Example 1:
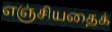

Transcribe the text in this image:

எஞ்சியதைக்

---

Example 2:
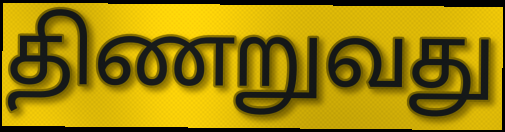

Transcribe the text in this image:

திணறுவது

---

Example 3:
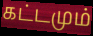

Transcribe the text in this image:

கட்டமும்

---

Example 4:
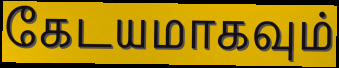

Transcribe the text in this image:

கேடயமாகவும்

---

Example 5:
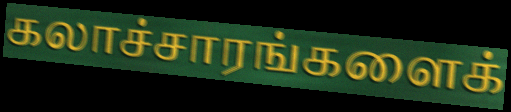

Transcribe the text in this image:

கலாச்சாரங்களைக்